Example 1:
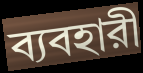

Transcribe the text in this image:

ব্যবহারী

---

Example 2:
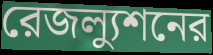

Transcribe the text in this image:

রেজল্যুশনের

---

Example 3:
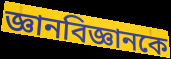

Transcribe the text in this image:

জ্ঞানবিজ্ঞানকে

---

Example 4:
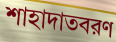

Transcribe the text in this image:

শাহাদাতবরণ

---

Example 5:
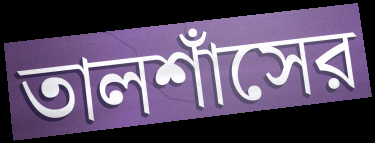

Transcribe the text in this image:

তালশাঁসের